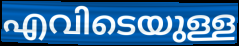
എവിടെയുള്ള